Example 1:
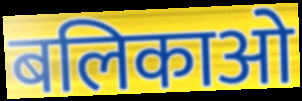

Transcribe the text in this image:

बलिकाओ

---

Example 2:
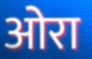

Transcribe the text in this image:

ओरा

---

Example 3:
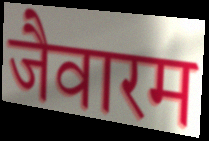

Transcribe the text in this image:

जैवारम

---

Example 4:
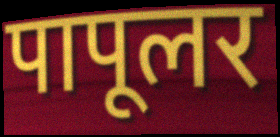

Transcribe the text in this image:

पापूलर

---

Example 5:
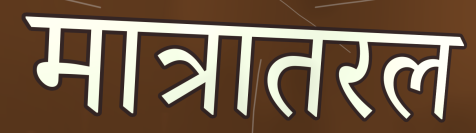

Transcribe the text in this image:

मात्रातरल